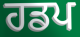
ਹਡਪ